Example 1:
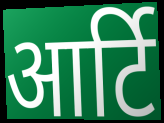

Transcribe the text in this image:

आर्टि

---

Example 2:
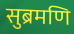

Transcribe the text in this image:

सुब्रमणि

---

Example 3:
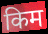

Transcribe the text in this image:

किम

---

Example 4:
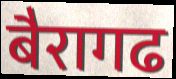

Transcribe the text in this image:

बैरागढ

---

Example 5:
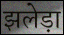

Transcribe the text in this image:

झलेड़ा